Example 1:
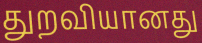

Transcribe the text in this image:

துறவியானது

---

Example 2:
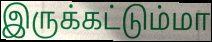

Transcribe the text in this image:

இருக்கட்டும்மா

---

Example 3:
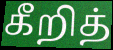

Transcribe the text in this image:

கீறித்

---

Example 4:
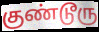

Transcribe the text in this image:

குண்டூரு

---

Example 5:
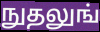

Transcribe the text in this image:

நுதலுங்